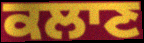
ਕਲਾਣ